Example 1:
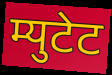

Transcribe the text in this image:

म्युटेट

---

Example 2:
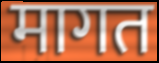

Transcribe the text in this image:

मागत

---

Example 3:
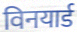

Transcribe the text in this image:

विनयार्ड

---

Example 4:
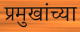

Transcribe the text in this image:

प्रमुखांच्या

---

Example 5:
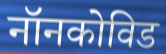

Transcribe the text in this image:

नॉनकोविड